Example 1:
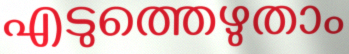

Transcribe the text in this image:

എടുത്തെഴുതാം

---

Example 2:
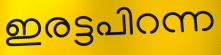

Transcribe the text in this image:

ഇരട്ടപിറന്ന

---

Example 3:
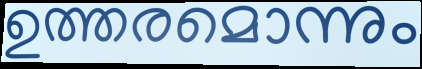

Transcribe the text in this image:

ഉത്തരമൊന്നും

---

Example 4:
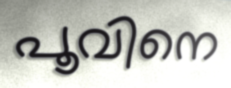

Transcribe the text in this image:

പൂവിനെ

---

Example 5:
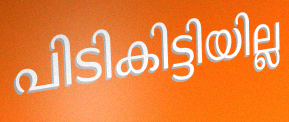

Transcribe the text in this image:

പിടികിട്ടിയില്ല